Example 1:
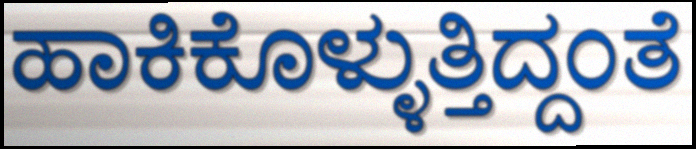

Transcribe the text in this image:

ಹಾಕಿಕೊಳ್ಳುತ್ತಿದ್ದಂತೆ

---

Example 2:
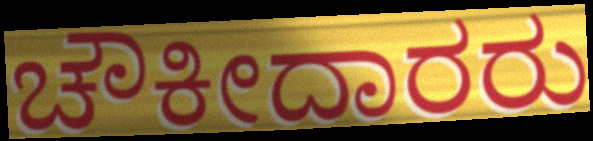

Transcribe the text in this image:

ಚೌಕೀದಾರರು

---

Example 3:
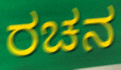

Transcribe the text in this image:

ರಚನ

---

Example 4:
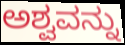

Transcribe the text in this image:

ಅಶ್ವವನ್ನು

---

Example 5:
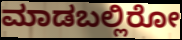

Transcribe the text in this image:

ಮಾಡಬಲ್ಲಿರೋ